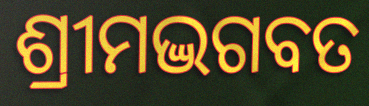
ଶ୍ରୀମଦ୍ଭଗବତ